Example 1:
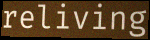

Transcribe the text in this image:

reliving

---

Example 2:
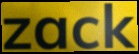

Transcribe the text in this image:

zack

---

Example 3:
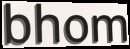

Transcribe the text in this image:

bhom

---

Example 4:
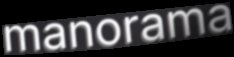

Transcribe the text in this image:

manorama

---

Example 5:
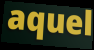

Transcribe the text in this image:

aquel